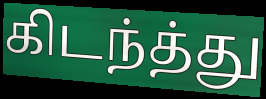
கிடந்த்து